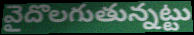
వైదొలగుతున్నట్టు